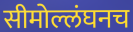
सीमोल्लंघनच